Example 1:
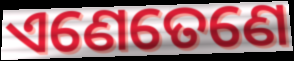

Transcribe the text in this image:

ଏଣେତେଣେ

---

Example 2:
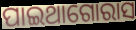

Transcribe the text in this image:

ପାଇଥାଗୋରାସ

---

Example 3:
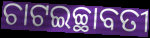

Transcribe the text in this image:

ଚାଟଇଚ୍ଛାବତୀ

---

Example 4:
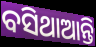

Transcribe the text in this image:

ବସିଥାଆନ୍ତି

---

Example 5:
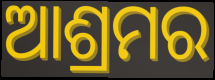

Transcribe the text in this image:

ଆଶ୍ରମର